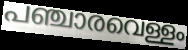
പഞ്ചാരവെള്ളം